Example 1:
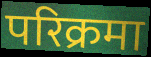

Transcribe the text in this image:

परिक्रमा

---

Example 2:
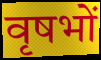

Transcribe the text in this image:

वृषभों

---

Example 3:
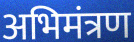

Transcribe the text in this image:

अभिमंत्रण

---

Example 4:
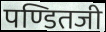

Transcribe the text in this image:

पण्डितजी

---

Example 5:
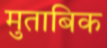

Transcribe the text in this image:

मुताबिक